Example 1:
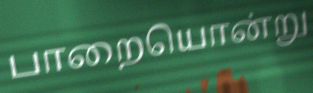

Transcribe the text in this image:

பாறையொன்று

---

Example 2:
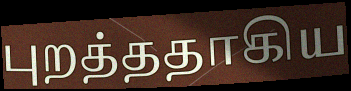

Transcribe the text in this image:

புறத்ததாகிய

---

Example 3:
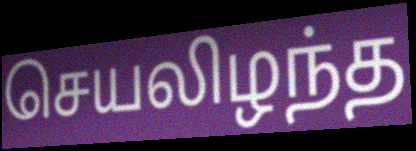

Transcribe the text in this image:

செயலிழந்த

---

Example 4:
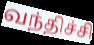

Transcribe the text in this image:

வந்திச்சி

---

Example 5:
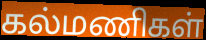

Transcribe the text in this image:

கல்மணிகள்